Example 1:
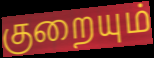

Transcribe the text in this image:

குறையும்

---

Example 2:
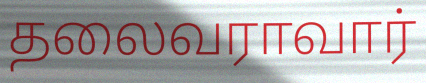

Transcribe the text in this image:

தலைவராவார்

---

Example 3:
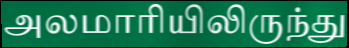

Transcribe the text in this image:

அலமாரியிலிருந்து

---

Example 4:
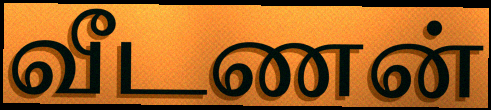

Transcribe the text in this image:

வீடணன்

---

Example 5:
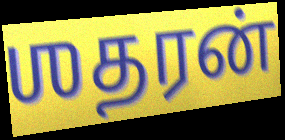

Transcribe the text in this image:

ஶதரன்